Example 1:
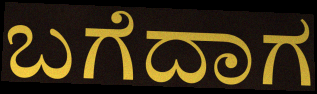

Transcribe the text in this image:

ಬಗೆದಾಗ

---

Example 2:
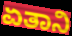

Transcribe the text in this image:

ಏತಾನಿ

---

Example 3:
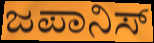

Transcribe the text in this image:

ಜಪಾನಿಸ್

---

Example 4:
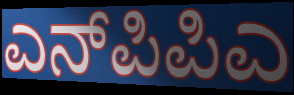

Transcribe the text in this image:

ಎನ್‌ಪಿಪಿಎ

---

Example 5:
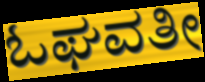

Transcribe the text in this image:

ಓಘವತೀ